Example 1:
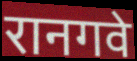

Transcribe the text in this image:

रानगवे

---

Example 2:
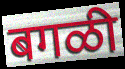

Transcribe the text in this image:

बगळी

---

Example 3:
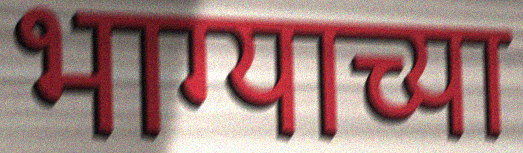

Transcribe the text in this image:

भाग्याच्या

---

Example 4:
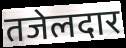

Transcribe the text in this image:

तजेलदार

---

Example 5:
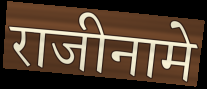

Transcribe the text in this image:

राजीनामे